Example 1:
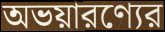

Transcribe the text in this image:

অভয়ারণ্যের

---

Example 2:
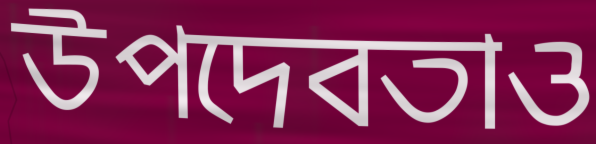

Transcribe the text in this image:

উপদেবতাও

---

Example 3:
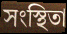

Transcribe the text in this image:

সংস্থিতা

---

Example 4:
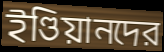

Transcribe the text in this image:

ইণ্ডিয়ানদের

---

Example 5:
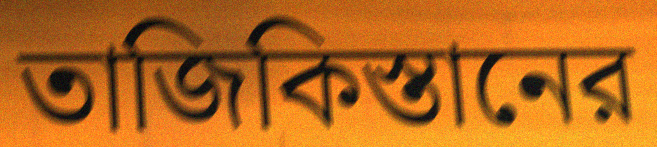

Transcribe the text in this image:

তাজিকিস্তানের